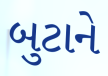
બુટાને